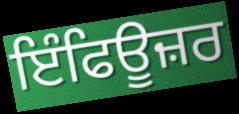
ਇੰਫਿਊਜ਼ਰ